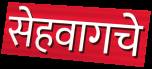
सेहवागचे